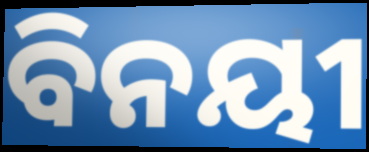
ବିନୟୀ